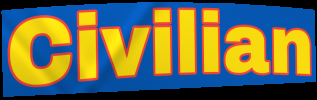
Civilian